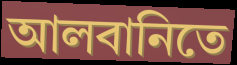
আলবানিতে